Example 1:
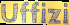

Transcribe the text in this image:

Uffizi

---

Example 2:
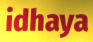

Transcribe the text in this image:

idhaya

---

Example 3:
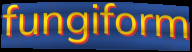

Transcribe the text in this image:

fungiform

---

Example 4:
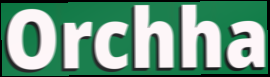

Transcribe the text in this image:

Orchha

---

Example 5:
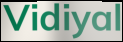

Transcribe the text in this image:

Vidiyal